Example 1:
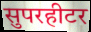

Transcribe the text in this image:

सुपरहीटर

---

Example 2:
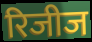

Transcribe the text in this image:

रिजीज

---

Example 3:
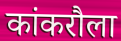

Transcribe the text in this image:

कांकरौला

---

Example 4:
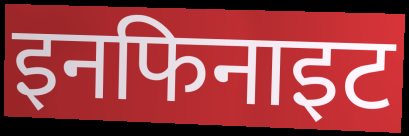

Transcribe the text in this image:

इनफिनाइट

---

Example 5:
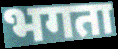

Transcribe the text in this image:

भगता